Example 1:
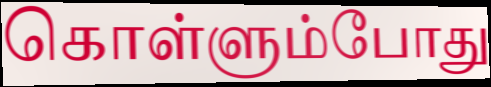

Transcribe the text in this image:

கொள்ளும்போது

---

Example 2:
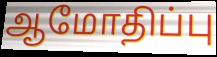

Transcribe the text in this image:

ஆமோதிப்பு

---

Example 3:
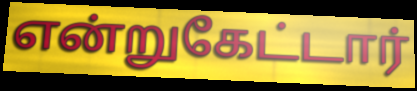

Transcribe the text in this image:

என்றுகேட்டார்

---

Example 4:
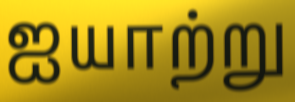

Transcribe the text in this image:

ஐயாற்று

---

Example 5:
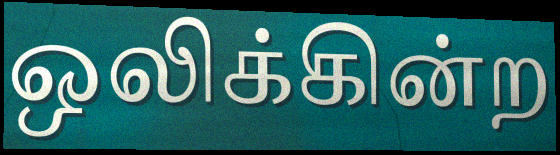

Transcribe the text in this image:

ஒலிக்கின்ற